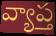
వ్యాప్త